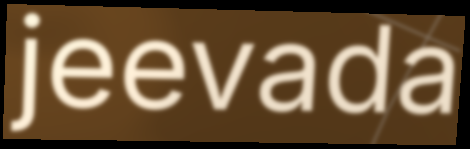
jeevada